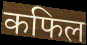
कफिल